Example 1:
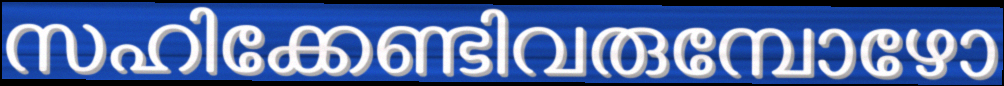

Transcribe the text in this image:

സഹിക്കേണ്ടിവരുമ്പോഴോ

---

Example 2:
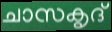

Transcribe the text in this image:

ചാസകൃദ്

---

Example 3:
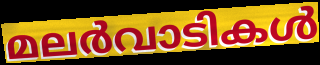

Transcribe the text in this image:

മലർവാടികൾ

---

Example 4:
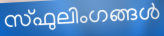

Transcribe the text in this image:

സ്ഫുലിംഗങ്ങൾ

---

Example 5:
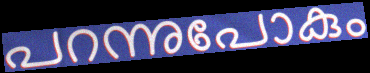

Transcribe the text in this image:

പറന്നുപോകും